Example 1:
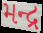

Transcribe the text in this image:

મન્દ્ર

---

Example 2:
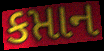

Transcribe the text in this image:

કપ્તાન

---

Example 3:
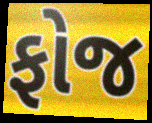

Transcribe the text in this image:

ફોજ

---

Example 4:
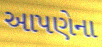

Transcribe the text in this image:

આપણેના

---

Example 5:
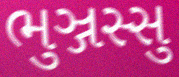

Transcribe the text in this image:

ભુઞ્જસ્સુ